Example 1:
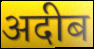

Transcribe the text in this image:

अदीब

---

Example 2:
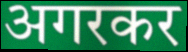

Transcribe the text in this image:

अगरकर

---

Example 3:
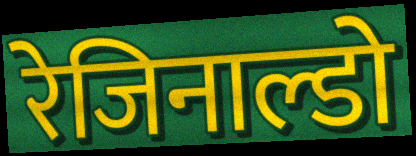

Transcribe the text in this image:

रेजिनाल्डो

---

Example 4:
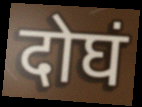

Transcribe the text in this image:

दोघं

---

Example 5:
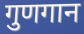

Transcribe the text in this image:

गुणगान